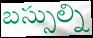
బస్సుల్ని